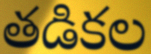
తడికల